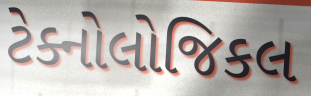
ટેક્નોલોજિકલ